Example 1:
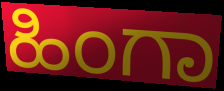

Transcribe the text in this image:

ಹಿಂಗಾ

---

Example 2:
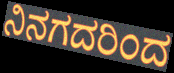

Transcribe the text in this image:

ನಿನಗದರಿಂದ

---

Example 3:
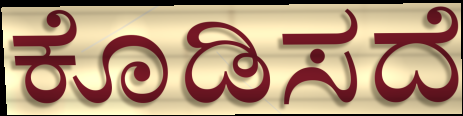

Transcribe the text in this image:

ಕೊಡಿಸದೆ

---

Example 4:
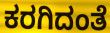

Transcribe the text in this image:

ಕರಗಿದಂತೆ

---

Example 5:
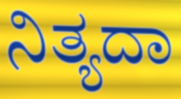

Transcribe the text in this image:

ನಿತ್ಯದಾ